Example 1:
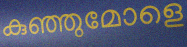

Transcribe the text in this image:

കുഞ്ഞുമോളെ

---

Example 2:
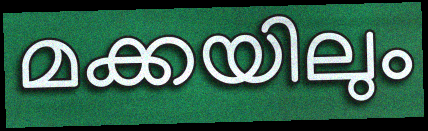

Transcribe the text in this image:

മക്കയിലും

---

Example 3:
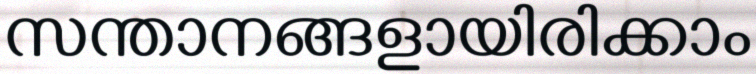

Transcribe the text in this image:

സന്താനങ്ങളായിരിക്കാം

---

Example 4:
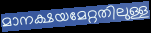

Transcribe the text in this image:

മാനക്ഷയമേറ്റതിലുള്ള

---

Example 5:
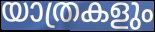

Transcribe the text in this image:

യാത്രകളും